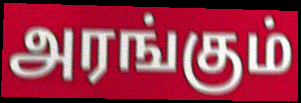
அரங்கும்